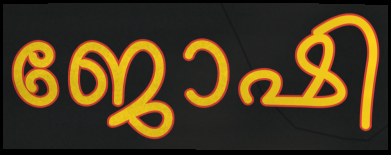
ജോഷി